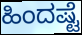
ಹಿಂದಷ್ಟೆ